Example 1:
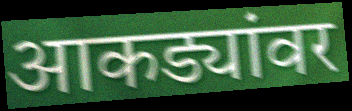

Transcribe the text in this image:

आकड्यांवर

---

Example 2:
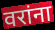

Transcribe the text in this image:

वरांना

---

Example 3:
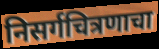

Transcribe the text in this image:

निसर्गचित्रणाचा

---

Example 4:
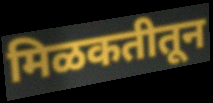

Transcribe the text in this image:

मिळकतीतून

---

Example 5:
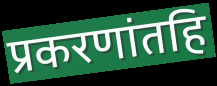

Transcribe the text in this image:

प्रकरणांतहि